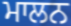
ਮਾਲਨ